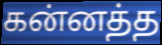
கன்னத்த